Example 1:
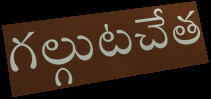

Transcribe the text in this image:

గల్గుటచేత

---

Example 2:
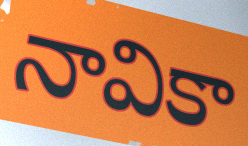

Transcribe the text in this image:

నావికా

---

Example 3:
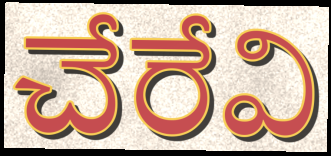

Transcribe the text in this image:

చేరేవి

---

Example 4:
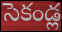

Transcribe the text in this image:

సెకండ్ల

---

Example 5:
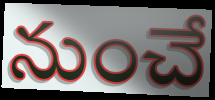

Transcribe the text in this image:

నుంచే